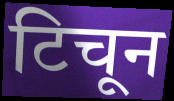
टिचून